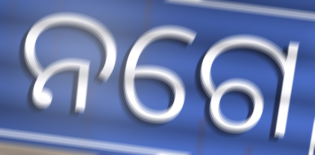
ନଗେ